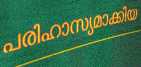
പരിഹാസ്യമാക്കിയ